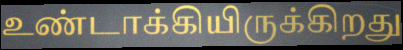
உண்டாக்கியிருக்கிறது